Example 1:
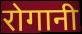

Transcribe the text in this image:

रोगानी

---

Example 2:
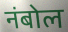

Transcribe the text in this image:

नंबोल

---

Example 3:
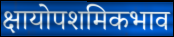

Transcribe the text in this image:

क्षायोपशमिकभाव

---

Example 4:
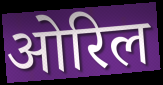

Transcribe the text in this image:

ओरिल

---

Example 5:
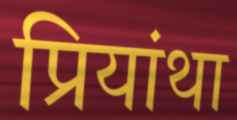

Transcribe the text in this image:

प्रियांथा